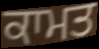
ਕਾਮਤ